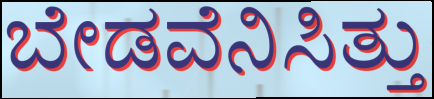
ಬೇಡವೆನಿಸಿತ್ತು